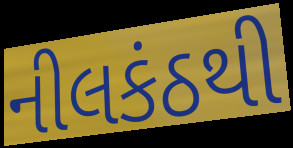
નીલકંઠથી